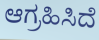
ಆಗ್ರಹಿಸಿದೆ